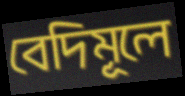
বেদিমূলে